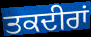
ਤਕਦੀਰਾਂ